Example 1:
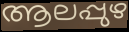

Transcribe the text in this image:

ആലപ്പുഴ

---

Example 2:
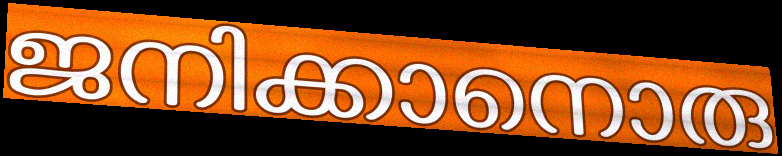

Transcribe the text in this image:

ജനിക്കാനൊരു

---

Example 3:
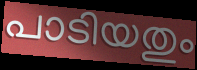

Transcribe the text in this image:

പാടിയതും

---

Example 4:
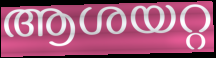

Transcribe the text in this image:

ആശയറ്റ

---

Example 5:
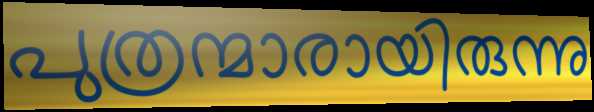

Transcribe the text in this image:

പുത്രന്മാരായിരുന്നു